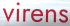
virens